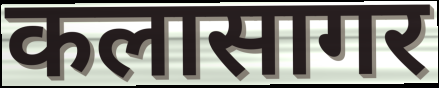
कलासागर